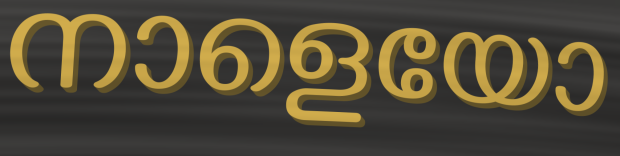
നാളെയോ